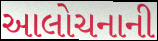
આલોચનાની